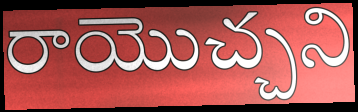
రాయొచ్చని